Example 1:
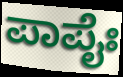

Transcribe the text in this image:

ಪಾಪೈಃ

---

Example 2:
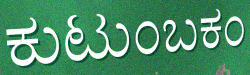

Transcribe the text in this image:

ಕುಟುಂಬಕಂ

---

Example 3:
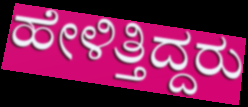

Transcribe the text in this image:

ಹೇಳಿತ್ತಿದ್ದರು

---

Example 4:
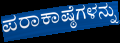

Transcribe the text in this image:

ಪರಾಕಾಷ್ಠೆಗಳನ್ನು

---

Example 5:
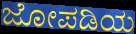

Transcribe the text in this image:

ಜೋಪಡಿಯ